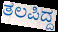
ತಲಪಿದ್ದ